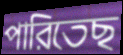
পারিতেছ